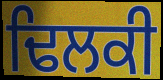
ਢਿਲਕੀ